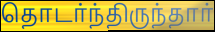
தொடர்ந்திருந்தார்